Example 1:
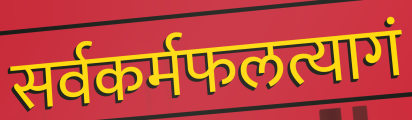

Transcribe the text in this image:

सर्वकर्मफलत्यागं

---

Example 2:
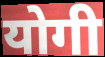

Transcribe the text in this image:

योगी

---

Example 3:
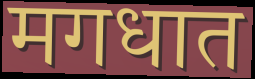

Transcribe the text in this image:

मगधात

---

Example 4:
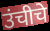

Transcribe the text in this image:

उंचीचे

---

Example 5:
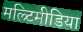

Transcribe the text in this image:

मल्टिमीडिया